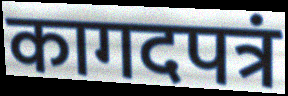
कागदपत्रं